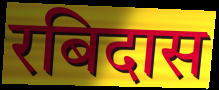
रबिदास